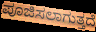
ಪೂಜಿಸಲಾಗುತ್ತದೆ